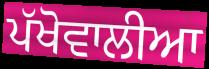
ਪੱਖੋਵਾਲੀਆ